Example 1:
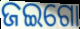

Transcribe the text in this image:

ଜଇଗୋ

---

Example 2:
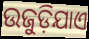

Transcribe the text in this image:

ଉଜୁଡ଼ିଯାଏ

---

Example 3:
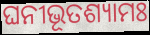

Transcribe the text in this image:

ଘନୀଭୂତଶ୍ୟାମଃ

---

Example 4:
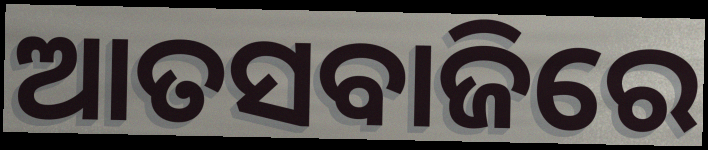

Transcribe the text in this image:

ଆତସବାଜିରେ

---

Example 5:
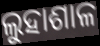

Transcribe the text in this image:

ଲୁହାଶାଳ